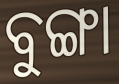
ବୁଙ୍ଗା